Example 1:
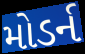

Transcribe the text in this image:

મોડર્ન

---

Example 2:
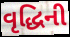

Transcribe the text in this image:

વૃદ્ધિની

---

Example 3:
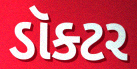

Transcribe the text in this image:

ડૉક્ટર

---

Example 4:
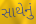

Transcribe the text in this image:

સાથેનું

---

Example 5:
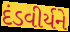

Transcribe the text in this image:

દંડવીર્યને